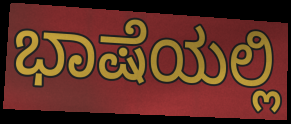
ಭಾಷೆಯಲ್ಲಿ